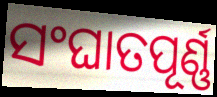
ସଂଘାତପୂର୍ଣ୍ଣ